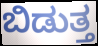
ಬಿಡುತ್ತ